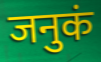
जनुकं